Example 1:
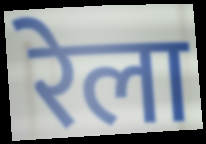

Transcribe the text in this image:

रेला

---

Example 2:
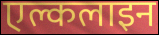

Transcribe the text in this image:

एल्कलाइन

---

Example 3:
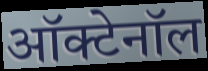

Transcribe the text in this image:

ऑक्टेनॉल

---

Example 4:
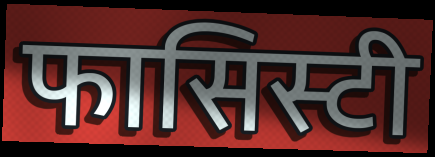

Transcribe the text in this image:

फासिस्टी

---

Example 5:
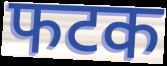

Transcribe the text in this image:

फटक